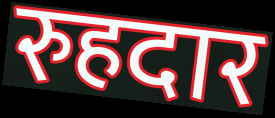
रुहदार